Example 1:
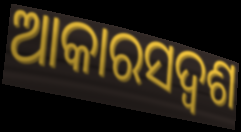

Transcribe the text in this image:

ଆକାରସଦ୍ୱଶ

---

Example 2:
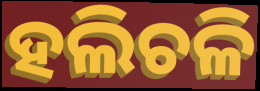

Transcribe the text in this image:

ହଲିଚଳି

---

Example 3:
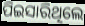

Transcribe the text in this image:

ପିଇସାରିଥିଲେ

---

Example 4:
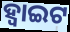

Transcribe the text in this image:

ହ୍ୱାଇଟ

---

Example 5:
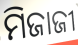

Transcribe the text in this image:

ମିଜାଜୀ